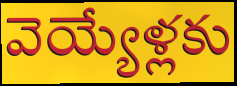
వెయ్యేళ్లకు